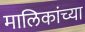
मालिकांच्या